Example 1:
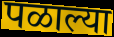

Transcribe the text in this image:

पळाल्या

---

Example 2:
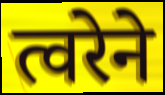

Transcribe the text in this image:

त्वरेने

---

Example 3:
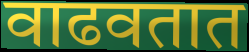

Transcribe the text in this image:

वाढवतात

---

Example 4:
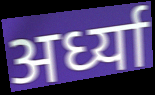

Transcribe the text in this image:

अर्ध्या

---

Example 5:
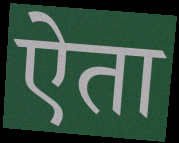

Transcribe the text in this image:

ऐता